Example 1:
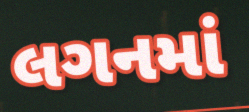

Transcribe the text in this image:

લગનમાં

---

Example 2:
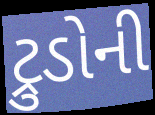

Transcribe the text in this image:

ટ્રુડોની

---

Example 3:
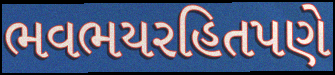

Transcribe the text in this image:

ભવભયરહિતપણે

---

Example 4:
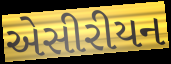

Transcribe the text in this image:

એસીરીયન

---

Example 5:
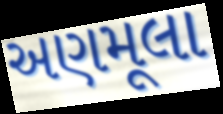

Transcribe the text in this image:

અણમૂલા